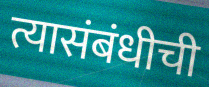
त्यासंबंधीची